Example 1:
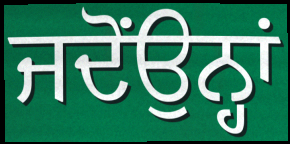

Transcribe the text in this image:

ਜਦੋਂਉਨ੍ਹਾਂ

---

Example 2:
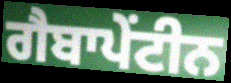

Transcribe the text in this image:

ਗੈਬਾਪੇਂਟੀਨ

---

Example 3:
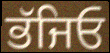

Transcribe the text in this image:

ਭੱਜਿਓ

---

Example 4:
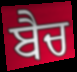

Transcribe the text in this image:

ਬੈਚ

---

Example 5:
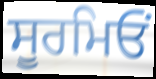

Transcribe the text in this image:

ਸੂਰਮਿਓਂ